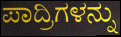
ಪಾದ್ರಿಗಳನ್ನು